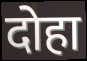
दोहा